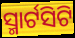
ସ୍ମାର୍ଟସିଟି